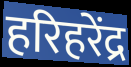
हरिहरेंद्र